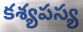
కశ్యపస్య